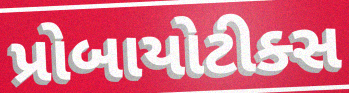
પ્રોબાયોટીક્સ